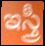
ఇస్త్రీ